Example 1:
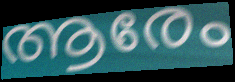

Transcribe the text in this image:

ആരേം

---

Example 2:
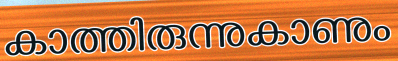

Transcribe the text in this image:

കാത്തിരുന്നുകാണും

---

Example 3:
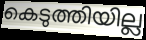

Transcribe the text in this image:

കെടുത്തിയില്ല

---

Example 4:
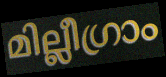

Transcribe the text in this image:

മില്ലീഗ്രാം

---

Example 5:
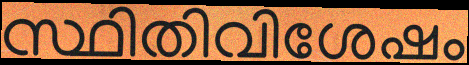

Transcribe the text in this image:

സ്ഥിതിവിശേഷം